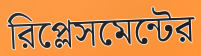
রিপ্লেসমেন্টের